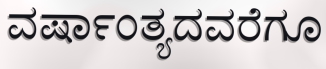
ವರ್ಷಾಂತ್ಯದವರೆಗೂ